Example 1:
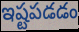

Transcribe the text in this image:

ఇష్టపడడం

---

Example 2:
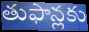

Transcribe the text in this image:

తుఫాన్లకు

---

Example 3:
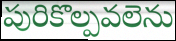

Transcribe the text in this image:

పురికొల్పవలెను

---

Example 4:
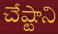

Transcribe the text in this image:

చేష్టాని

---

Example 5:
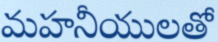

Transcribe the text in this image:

మహనీయులతో